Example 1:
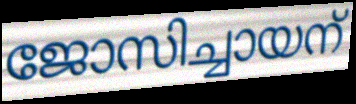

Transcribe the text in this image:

ജോസിച്ചായന്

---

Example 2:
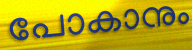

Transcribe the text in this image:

പോകാനും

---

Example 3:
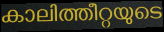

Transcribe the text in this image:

കാലിത്തീറ്റയുടെ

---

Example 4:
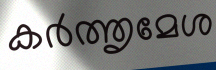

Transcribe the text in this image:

കർത്തൃമേശ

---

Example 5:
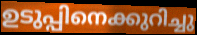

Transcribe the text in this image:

ഉടുപ്പിനെക്കുറിച്ചു